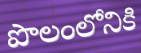
పొలంలోనికి